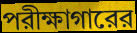
পরীক্ষাগারের